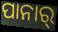
ପାନାର୍